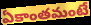
ఏకాంతమంటే